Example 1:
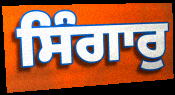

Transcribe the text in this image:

ਸਿੰਗਾਰੁ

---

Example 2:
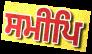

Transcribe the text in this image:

ਸਮੀਪਿ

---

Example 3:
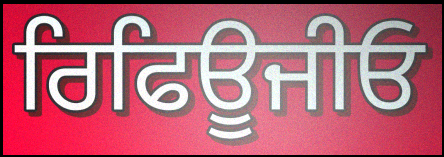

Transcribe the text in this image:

ਰਿਫਿਊਜੀਓ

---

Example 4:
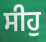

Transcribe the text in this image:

ਸੀਹੁ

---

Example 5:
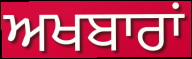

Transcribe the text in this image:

ਅਖਬਾਰਾਂ